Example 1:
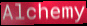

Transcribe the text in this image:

Alchemy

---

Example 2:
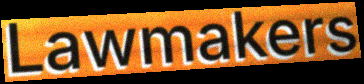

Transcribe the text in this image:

Lawmakers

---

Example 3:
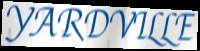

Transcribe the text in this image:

YARDVILLE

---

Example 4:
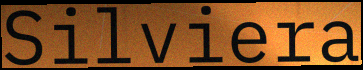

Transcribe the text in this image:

Silviera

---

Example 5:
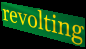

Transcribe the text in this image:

revolting